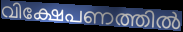
വിക്ഷേപണത്തിൽ